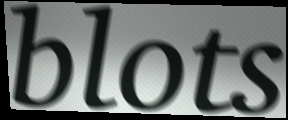
blots